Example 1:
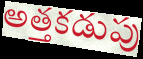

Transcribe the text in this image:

అత్తకడుపు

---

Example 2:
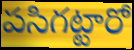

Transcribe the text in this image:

పసిగట్టారో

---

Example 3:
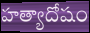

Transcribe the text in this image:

హత్యాదోషం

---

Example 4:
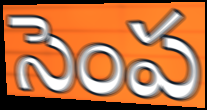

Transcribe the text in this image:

సెంప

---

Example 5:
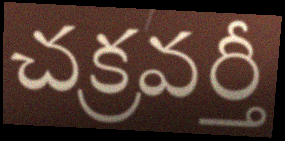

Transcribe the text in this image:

చక్రవర్తీ